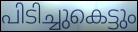
പിടിച്ചുകെട്ടും